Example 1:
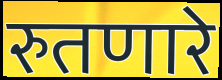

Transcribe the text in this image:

रुतणारे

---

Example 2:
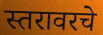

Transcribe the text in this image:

स्तरावरचे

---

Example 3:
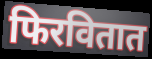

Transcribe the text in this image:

फिरवितात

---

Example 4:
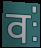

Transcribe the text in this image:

वः॑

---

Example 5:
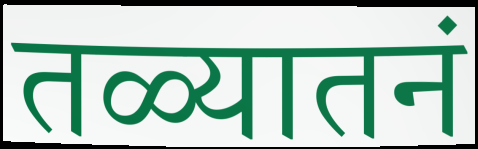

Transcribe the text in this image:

तळ्यातनं